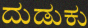
ದುಡುಕು